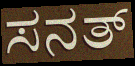
ಸನತ್